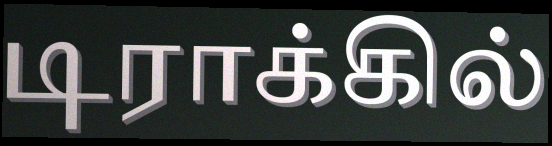
டிராக்கில்